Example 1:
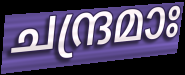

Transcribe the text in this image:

ചന്ദ്രമാഃ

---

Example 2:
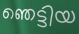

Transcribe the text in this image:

ഞെട്ടിയ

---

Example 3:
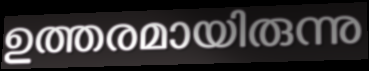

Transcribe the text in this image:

ഉത്തരമായിരുന്നു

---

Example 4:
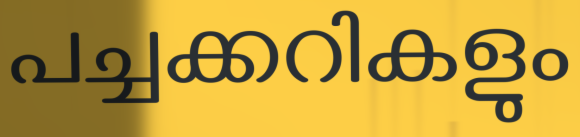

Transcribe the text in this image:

പച്ചക്കറികളും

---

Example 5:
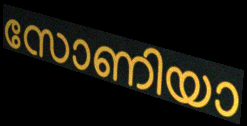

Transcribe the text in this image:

സോണിയാ